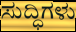
ಸುದ್ಧಿಗಳು